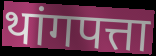
थांगपत्ता